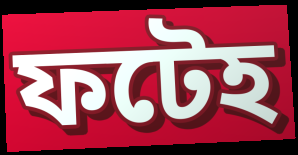
ফটেহ